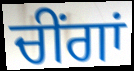
ਚੀਂਗਾਂ